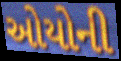
ઓયોની